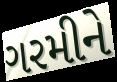
ગરમીને